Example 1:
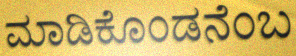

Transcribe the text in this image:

ಮಾಡಿಕೊಂಡನೆಂಬ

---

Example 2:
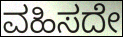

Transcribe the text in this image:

ವಹಿಸದೇ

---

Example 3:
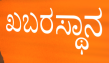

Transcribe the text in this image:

ಖಬರಸ್ಥಾನ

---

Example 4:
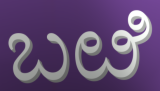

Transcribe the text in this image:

ಬೞಿ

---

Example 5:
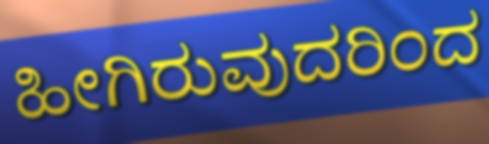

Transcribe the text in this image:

ಹೀಗಿರುವುದರಿಂದ